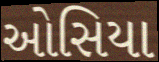
ઓસિયા